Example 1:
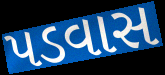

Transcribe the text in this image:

પડવાસ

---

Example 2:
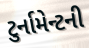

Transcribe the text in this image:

ટુર્નામેન્ટની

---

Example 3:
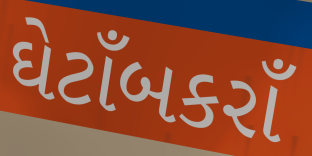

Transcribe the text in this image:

ઘેટાઁબકરાઁ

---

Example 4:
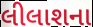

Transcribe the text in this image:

લીલાશના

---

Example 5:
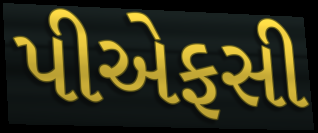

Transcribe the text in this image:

પીએફસી